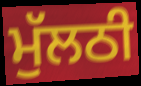
ਮੁੱਲਠੀ